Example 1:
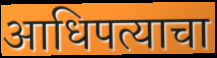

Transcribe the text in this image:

आधिपत्याचा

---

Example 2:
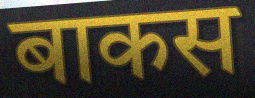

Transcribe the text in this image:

बाकस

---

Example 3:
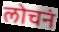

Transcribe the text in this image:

लोचनं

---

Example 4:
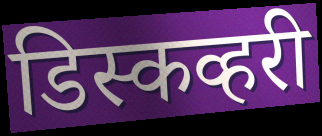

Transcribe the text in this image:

डिस्कव्हरी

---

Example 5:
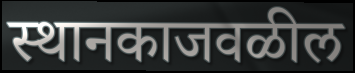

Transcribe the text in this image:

स्थानकाजवळील